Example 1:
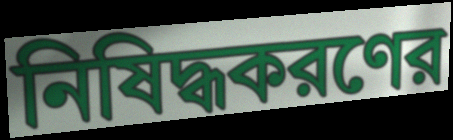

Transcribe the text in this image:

নিষিদ্ধকরণের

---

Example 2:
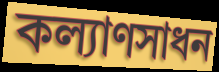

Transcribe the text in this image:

কল্যাণসাধন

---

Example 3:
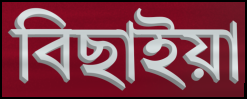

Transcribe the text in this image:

বিছাইয়া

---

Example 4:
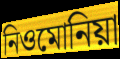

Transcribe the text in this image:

নিওমোনিয়া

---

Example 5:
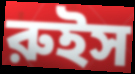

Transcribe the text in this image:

রুইস